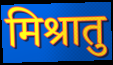
मिश्रातु